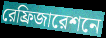
রেফ্রিজারেশনে